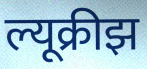
ल्यूक्रीझ